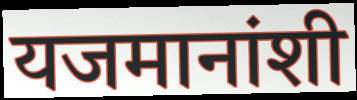
यजमानांशी